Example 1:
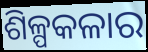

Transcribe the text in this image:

ଶିଳ୍ପକଳାର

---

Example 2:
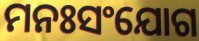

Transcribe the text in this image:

ମନଃସଂଯୋଗ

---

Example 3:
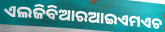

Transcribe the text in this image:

ଏଲଜିବିଆରଆଇଏମଏଚ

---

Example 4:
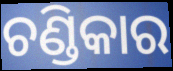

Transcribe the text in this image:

ଚଣ୍ଡିକାର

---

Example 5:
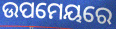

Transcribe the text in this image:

ଉପମେୟରେ